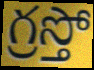
గ్రస్తో